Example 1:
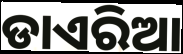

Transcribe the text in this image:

ଡାଏରିଆ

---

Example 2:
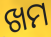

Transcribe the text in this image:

ଖମ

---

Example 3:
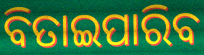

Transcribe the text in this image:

ବିତାଇପାରିବ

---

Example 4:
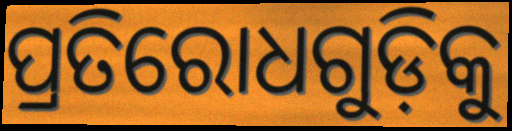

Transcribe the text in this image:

ପ୍ରତିରୋଧଗୁଡ଼ିକୁ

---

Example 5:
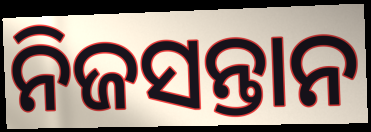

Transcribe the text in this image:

ନିଜସନ୍ତାନ